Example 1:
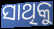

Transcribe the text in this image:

ସାଥିକୁ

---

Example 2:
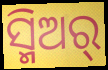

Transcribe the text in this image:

ସ୍ମିଅର୍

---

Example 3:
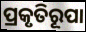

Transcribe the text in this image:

ପ୍ରକୃତିରୂପା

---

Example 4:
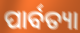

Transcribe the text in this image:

ପାର୍ବତ୍ୟା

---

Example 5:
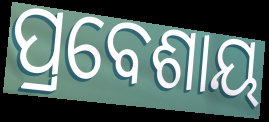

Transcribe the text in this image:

ପ୍ରବେଶାୟ